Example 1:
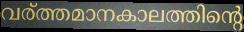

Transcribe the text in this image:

വര്ത്തമാനകാലത്തിന്റെ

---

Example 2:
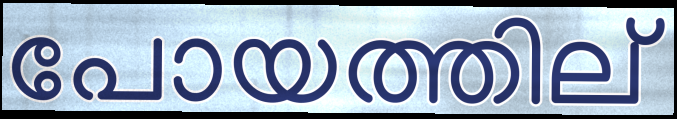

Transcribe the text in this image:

പോയത്തില്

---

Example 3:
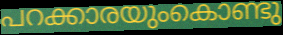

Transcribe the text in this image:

പറക്കാരയുംകൊണ്ടു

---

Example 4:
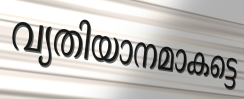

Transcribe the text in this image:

വ്യതിയാനമാകട്ടെ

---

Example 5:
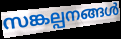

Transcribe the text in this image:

സങ്കല്പനങ്ങൾ